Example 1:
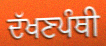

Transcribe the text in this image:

ਦੱਖਣਪੰਥੀ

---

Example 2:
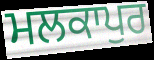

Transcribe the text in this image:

ਮਲਕਾਪੁਰ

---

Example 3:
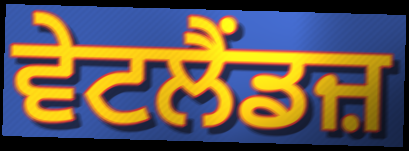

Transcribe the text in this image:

ਵੇਟਲੈਂਡਜ਼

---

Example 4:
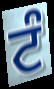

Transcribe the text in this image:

ਟੰ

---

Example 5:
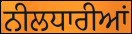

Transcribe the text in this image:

ਨੀਲਧਾਰੀਆਂ